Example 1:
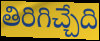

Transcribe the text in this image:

తిరిగిచ్చేది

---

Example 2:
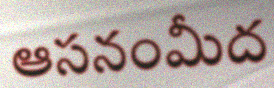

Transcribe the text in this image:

ఆసనంమీద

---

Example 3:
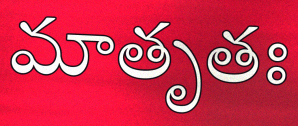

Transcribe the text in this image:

మాతృతః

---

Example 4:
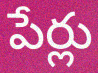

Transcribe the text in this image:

పేర్లు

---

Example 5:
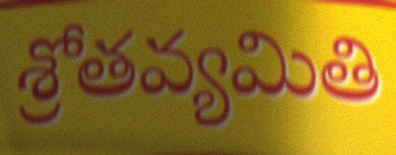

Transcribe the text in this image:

శ్రోతవ్యమితి